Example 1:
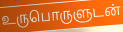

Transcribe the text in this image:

உருபொருளுடன்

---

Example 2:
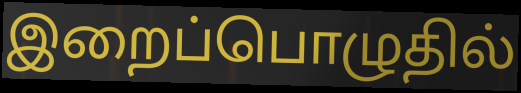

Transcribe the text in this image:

இறைப்பொழுதில்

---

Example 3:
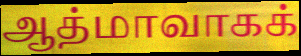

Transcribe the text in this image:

ஆத்மாவாகக்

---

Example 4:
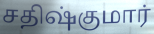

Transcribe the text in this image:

சதிஷ்குமார்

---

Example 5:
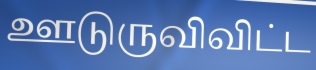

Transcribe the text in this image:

ஊடுருவிவிட்ட